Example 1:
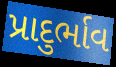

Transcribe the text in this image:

પ્રાદુર્ભાવ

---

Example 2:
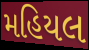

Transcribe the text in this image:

મહિયલ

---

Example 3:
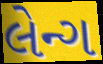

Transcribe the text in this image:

લેન્ગ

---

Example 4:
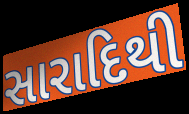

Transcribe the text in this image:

સારાદિથી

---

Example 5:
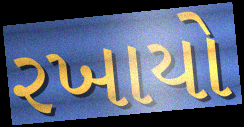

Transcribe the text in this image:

રખાયો